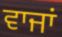
ਵਾਜਾਂ